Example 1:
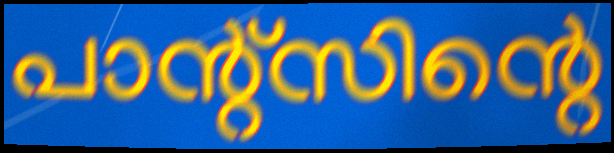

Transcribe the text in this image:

പാന്റ്സിന്റെ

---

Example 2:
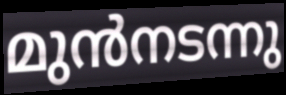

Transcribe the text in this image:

മുൻനടന്നു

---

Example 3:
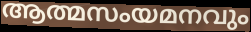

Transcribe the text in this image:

ആത്മസംയമനവും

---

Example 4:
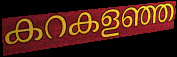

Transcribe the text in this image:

കറകളഞ്ഞ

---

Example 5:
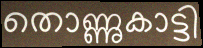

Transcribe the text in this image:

തൊണ്ണുകാട്ടി